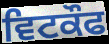
ਵਿਟਕੌਫ